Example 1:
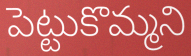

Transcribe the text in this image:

పెట్టుకొమ్మని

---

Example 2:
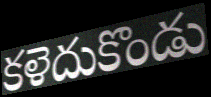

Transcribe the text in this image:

కళెదుకొండు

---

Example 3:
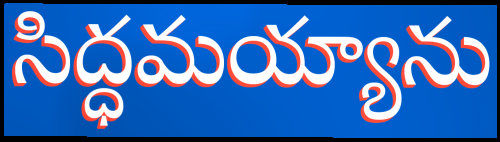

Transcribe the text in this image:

సిద్ధమయ్యాను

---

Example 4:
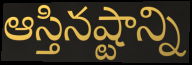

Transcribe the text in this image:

ఆస్తినష్టాన్ని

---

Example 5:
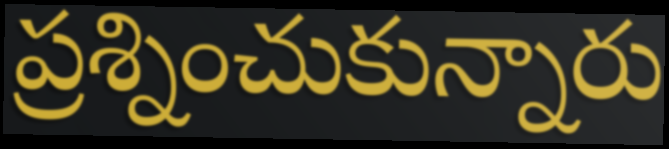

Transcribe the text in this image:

ప్రశ్నించుకున్నారు